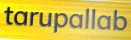
tarupallab